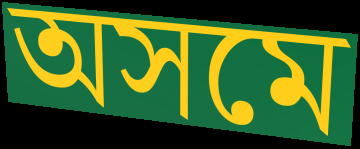
অসমে